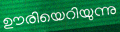
ഊരിയെറിയുന്നു